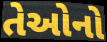
તેઓનો